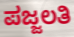
ಪಜ್ಜಲತಿ